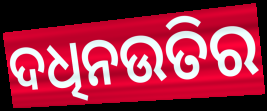
ଦଧିନଉତିର